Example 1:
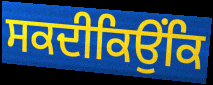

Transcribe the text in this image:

ਸਕਦੀਕਿਉਂਕਿ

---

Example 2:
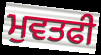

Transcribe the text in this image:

ਮੁਵਤਫੀ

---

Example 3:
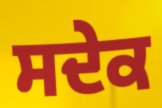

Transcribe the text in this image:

ਸਦੇਕ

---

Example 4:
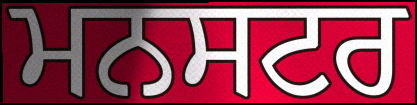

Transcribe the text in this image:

ਮਨਸਟਰ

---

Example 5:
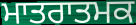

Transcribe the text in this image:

ਮਾਤਰਾਤਮਕ